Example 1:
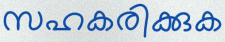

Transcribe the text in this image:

സഹകരിക്കുക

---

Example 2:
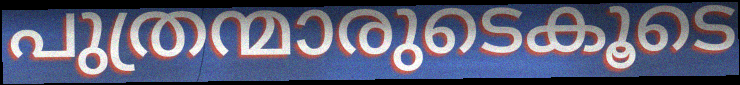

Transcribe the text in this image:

പുത്രന്മാരുടെകൂടെ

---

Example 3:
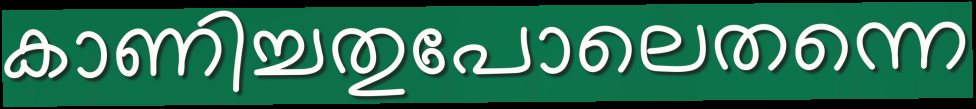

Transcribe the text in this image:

കാണിച്ചതുപോലെതന്നെ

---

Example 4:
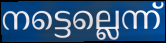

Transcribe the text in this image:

നട്ടെല്ലെന്ന്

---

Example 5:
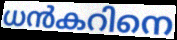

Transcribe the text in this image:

ധൻകറിനെ